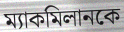
ম্যাকমিলানকে